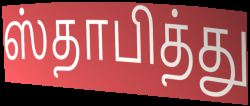
ஸ்தாபித்து